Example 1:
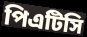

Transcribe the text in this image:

পিএটিসি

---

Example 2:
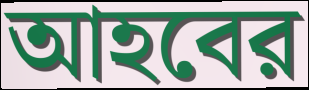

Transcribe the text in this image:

আহবের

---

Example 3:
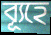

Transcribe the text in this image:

ব্যূহে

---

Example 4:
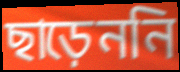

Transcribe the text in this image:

ছাড়েননি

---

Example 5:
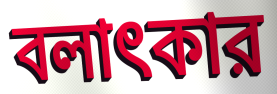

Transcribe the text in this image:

বলাৎকার